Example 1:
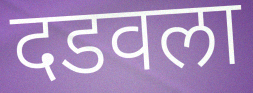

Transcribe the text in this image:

दडवला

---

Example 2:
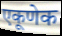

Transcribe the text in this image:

एकूणेक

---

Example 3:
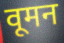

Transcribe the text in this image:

वूमन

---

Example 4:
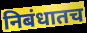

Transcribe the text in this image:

निबंधातच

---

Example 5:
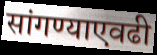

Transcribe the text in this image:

सांगण्याएवढी